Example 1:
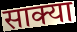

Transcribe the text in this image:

साक्या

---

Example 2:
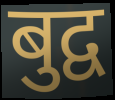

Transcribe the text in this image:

बुद्व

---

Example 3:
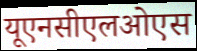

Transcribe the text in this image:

यूएनसीएलओएस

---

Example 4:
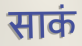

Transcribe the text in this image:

साकं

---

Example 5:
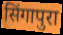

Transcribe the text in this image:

सिंगापुरा